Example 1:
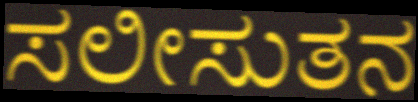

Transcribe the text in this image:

ಸಲೀಸುತನ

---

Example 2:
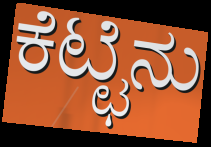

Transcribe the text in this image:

ಕೆಟ್ಟೆನು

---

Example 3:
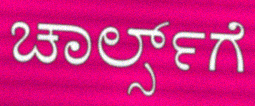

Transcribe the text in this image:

ಚಾರ್ಲ್ಸ್‌ಗೆ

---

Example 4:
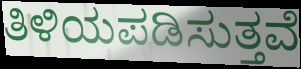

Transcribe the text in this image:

ತಿಳಿಯಪಡಿಸುತ್ತವೆ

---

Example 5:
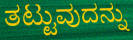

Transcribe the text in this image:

ತಟ್ಟುವುದನ್ನು